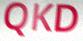
QKD